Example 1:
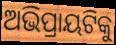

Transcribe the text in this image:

ଅଭିପ୍ରାୟଟିକୁ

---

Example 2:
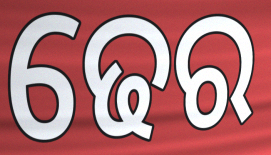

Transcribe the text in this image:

ଢେର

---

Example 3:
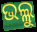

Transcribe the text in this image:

ଭଲ୍ଲୁ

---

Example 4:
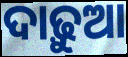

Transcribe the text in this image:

ଦାଢ଼ୁଆ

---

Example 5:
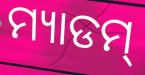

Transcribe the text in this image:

ମ୍ୟାଡମ୍